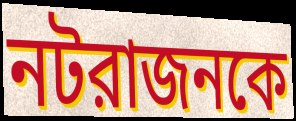
নটরাজনকে